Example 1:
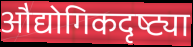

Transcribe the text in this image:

औद्योगिकदृष्ट्या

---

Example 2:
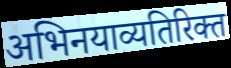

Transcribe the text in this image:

अभिनयाव्यतिरिक्त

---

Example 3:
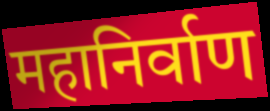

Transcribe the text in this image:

महानिर्वाण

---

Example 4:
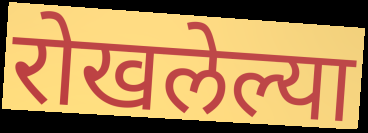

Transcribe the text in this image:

रोखलेल्या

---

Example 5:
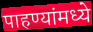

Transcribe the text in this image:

पाहण्यांमध्ये